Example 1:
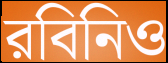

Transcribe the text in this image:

রবিনিও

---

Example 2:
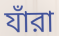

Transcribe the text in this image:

যাঁরা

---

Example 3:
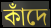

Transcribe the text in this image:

কাঁদে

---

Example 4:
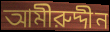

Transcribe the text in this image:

আমীরুদ্দীন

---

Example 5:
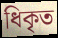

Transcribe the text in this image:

ধিকৃত